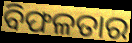
ବିଫଳତାର